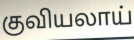
குவியலாய்